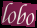
lobo